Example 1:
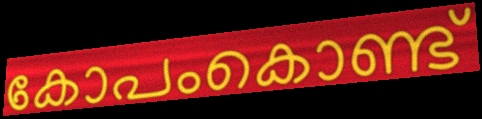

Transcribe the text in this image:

കോപംകൊണ്ട്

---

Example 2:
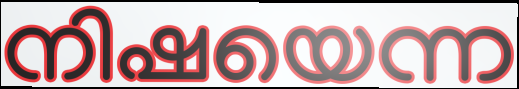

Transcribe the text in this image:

നിഷയെന്ന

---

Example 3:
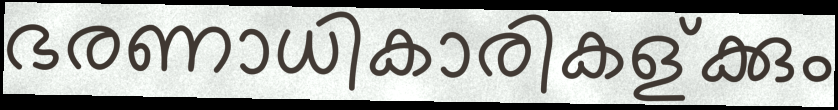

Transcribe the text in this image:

ഭരണാധികാരികള്ക്കും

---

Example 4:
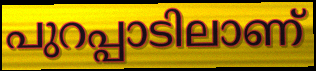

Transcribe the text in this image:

പുറപ്പാടിലാണ്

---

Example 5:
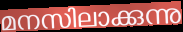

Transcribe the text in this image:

മനസിലാക്കുന്നു